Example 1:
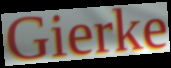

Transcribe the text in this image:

Gierke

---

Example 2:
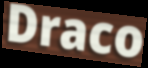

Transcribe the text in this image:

Draco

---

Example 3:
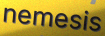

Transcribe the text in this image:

nemesis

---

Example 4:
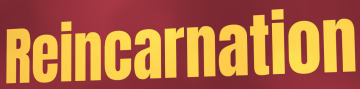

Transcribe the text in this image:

Reincarnation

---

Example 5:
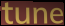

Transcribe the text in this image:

tune